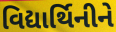
વિદ્યાર્થિનીને